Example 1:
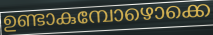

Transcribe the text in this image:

ഉണ്ടാകുമ്പോഴൊക്കെ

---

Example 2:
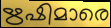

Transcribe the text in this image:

ഋഷിമാരെ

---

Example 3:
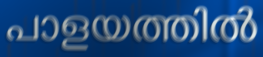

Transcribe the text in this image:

പാളയത്തിൽ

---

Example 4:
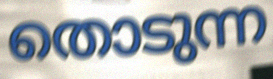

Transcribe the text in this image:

തൊടുന്ന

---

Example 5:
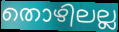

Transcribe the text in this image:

തൊഴിലല്ല